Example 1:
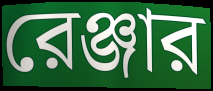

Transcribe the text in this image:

রেঞ্জার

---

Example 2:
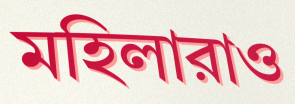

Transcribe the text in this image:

মহিলারাও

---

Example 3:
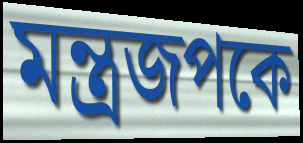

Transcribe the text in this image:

মন্ত্রজপকে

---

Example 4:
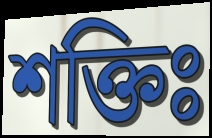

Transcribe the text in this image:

শক্তিঃ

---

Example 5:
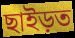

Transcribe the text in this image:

ছাইড়ত